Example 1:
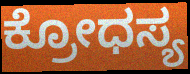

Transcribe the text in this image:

ಕ್ರೋಧಸ್ಯ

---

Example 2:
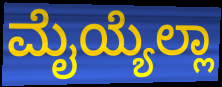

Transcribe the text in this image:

ಮೈಯ್ಯೆಲ್ಲಾ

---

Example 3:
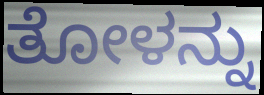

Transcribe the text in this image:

ತೋಳನ್ನು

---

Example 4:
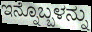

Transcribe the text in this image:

ಇನ್ನೊಬ್ಬಳನ್ನು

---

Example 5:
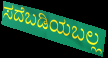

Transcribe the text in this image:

ಸದೆಬಡಿಯಬಲ್ಲ